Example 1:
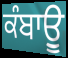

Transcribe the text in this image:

ਕੰਬਾਊੁ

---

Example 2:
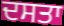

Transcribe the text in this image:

ਦਸਤਾ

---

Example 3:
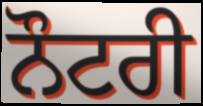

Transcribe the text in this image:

ਨੌਟਰੀ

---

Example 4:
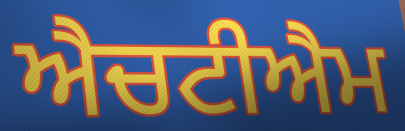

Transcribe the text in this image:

ਐਚਟੀਐਮ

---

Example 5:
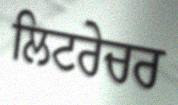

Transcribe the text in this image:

ਲਿਟਰੇਚਰ